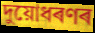
দুয়োধৰণৰ